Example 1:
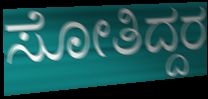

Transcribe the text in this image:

ಸೋತಿದ್ದರ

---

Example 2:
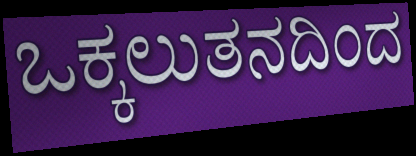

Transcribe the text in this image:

ಒಕ್ಕಲುತನದಿಂದ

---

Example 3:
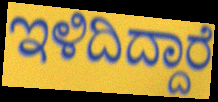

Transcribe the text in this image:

ಇಳಿದಿದ್ದಾರೆ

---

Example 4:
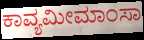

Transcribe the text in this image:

ಕಾವ್ಯಮೀಮಾಂಸಾ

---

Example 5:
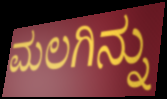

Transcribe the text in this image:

ಮಲಗಿನ್ನು